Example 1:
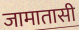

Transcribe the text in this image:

जामातासी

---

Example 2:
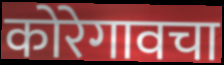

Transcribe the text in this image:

कोरेगावचा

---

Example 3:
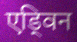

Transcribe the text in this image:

एड्विन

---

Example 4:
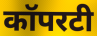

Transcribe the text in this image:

कॉपरटी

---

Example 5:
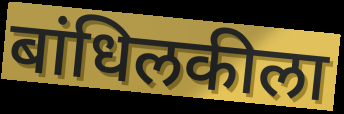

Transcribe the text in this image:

बांधिलकीला